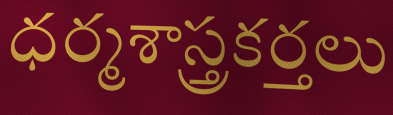
ధర్మశాస్త్రకర్తలు